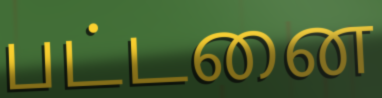
பட்டனை